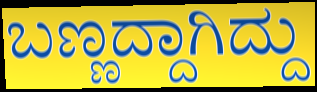
ಬಣ್ಣದ್ದಾಗಿದ್ದು